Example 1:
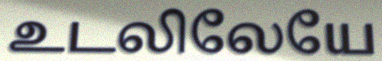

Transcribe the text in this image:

உடலிலேயே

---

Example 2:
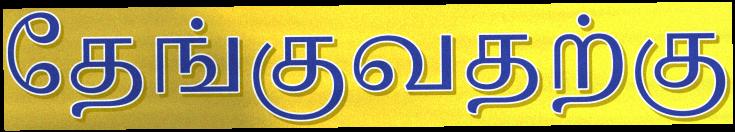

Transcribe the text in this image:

தேங்குவதற்கு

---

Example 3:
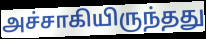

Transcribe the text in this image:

அச்சாகியிருந்தது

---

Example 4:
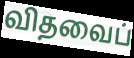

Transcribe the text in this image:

விதவைப்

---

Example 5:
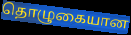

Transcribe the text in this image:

தொழுகையான